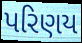
પરિણય